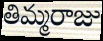
తిమ్మరాజు